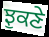
ਝੁਕਣੇ